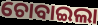
ଚୋବାଇଲା